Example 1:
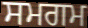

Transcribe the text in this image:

ਸਮਗਮ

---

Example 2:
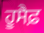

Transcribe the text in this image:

ਹੂਸੈਫ਼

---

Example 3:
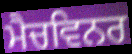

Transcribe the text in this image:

ਮੈਚਵਿਨਰ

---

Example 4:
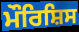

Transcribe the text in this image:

ਮੌਰਿਸ਼ਿਸ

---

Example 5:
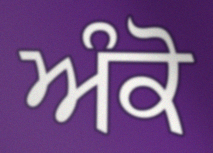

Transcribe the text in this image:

ਅੰਕੋ